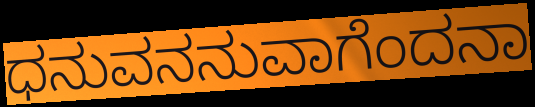
ಧನುವನನುವಾಗೆಂದನಾ